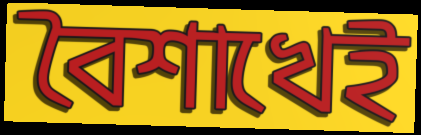
বৈশাখেই